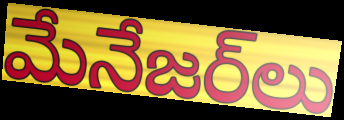
మేనేజర్‌లు